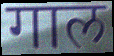
गाल